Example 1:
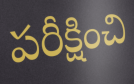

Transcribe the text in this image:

పరీక్షించి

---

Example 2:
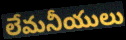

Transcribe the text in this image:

లేమనీయులు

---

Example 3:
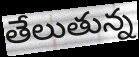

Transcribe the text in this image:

తేలుతున్న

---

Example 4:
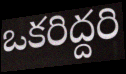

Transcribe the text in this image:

ఒకరిద్దరి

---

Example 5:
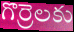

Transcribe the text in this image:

గొర్రెలకు